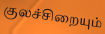
குலச்சிறையும்